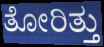
ತೋರಿತ್ತು